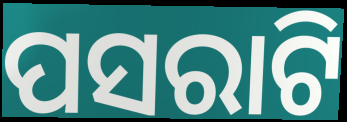
ପସରାଟି